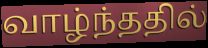
வாழ்ந்ததில்